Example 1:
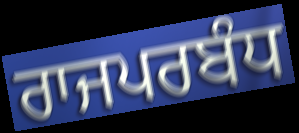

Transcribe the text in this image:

ਰਾਜਪਰਬੰਧ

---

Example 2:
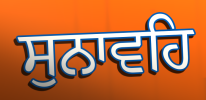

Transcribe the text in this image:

ਸੁਨਾਵਹਿ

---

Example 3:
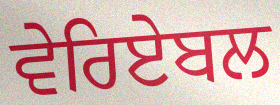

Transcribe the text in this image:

ਵੇਰਿਏਬਲ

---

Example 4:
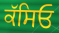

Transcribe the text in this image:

ਕੱਸਿਓ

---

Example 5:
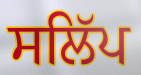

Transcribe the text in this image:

ਸਲਿੱਪ